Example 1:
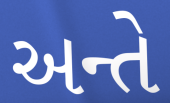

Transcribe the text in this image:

અન્તે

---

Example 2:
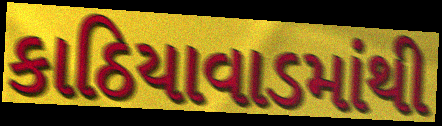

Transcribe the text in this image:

કાઠિયાવાડમાંથી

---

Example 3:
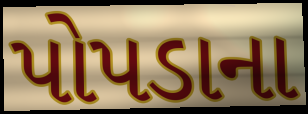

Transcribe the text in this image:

પોપડાના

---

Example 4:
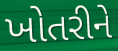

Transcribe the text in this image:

ખોતરીને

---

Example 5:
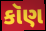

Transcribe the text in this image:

કૉણ